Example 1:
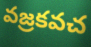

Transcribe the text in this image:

వజ్రకవచ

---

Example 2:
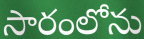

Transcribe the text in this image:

సారంలోను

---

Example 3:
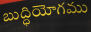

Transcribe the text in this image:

బుద్ధియోగము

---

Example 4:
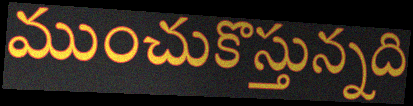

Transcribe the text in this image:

ముంచుకొస్తున్నది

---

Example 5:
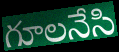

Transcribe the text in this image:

గూలనేసి